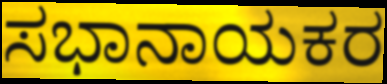
ಸಭಾನಾಯಕರ